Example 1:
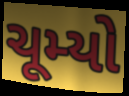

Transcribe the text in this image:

ચૂમ્યો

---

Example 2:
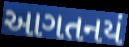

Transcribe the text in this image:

આગતનયં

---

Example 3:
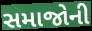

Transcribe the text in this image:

સમાજોની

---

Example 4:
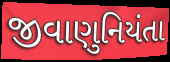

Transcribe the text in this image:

જીવાણુનિયંતા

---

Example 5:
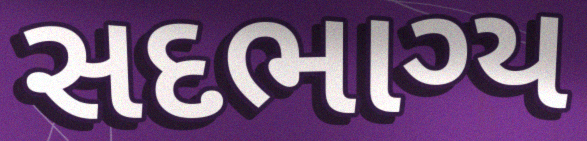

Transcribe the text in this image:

સદભાગ્ય